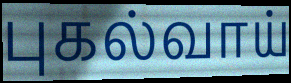
புகல்வாய்